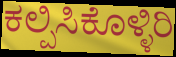
ಕಲ್ಪಿಸಿಕೊಳ್ಳಿರಿ